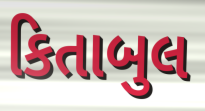
કિતાબુલ